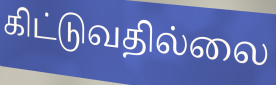
கிட்டுவதில்லை